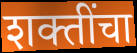
शक्तींचा